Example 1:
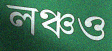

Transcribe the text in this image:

লঞ্চও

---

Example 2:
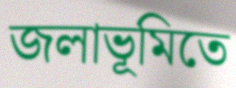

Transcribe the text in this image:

জলাভূমিতে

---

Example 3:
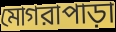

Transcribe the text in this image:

মোগরাপাড়া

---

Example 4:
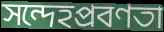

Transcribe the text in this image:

সন্দেহপ্রবণতা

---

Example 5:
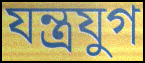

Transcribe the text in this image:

যন্ত্রযুগ